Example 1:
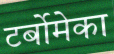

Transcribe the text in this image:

टर्बोमेका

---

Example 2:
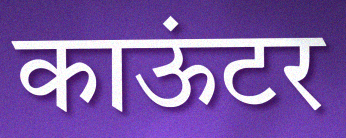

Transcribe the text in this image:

काऊंटर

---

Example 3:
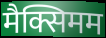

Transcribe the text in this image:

मैक्सिमम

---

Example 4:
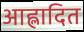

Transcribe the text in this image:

आह्लादित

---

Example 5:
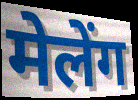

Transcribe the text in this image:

मेलेंग